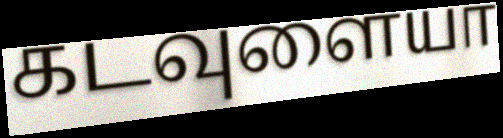
கடவுளையா